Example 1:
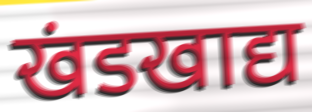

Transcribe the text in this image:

खंडखाद्य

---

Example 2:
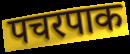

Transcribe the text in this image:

पचरपाक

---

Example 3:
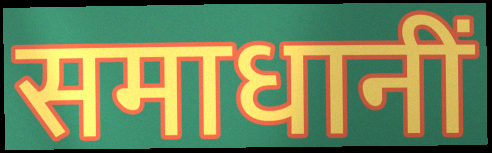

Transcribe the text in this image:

समाधानीं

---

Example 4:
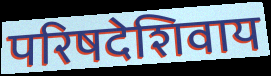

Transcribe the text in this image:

परिषदेशिवाय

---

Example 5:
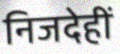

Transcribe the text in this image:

निजदेहीं